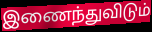
இணைந்துவிடும்